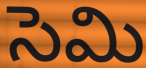
సెమి